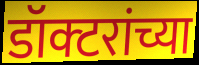
डॉक्‍टरांच्या